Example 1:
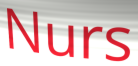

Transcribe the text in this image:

Nurs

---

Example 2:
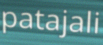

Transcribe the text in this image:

patajali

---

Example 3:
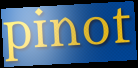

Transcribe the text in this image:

pinot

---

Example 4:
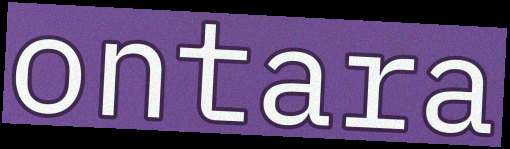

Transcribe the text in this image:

ontara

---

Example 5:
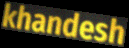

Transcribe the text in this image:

khandesh